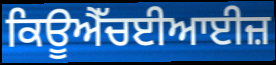
ਕਿਊਐੱਚਈਆਈਜ਼